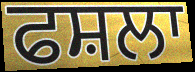
ਫਸ਼ਲਾ